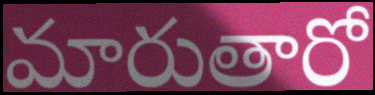
మారుతారో